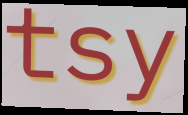
tsy